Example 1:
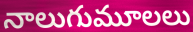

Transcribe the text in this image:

నాలుగుమూలలు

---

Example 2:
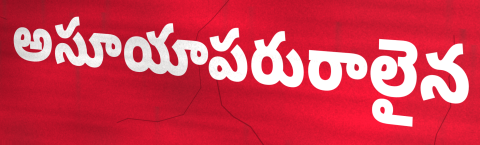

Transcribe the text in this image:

అసూయాపరురాలైన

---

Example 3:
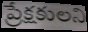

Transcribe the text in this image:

ప్రేక్షకులని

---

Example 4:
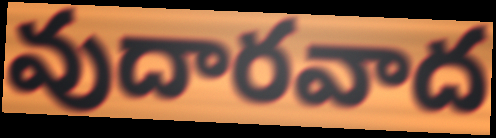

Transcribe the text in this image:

వుదారవాద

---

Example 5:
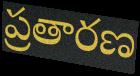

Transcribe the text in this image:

ప్రతారణ